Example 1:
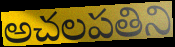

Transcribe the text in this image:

అచలపతిని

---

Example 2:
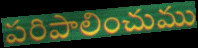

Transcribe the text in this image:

పరిపాలించుము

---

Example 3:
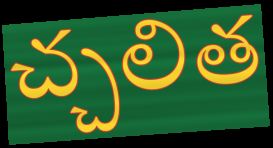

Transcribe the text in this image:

చ్చలిత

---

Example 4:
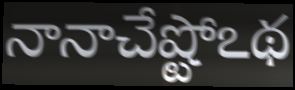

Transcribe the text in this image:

నానాచేష్టోఽథ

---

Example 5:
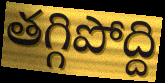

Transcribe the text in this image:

తగ్గిపోద్ది